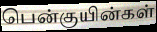
பென்குயின்கள்